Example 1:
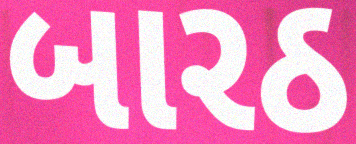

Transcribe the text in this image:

બારઠ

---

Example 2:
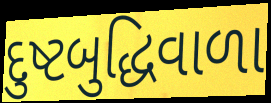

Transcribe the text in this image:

દુષ્ટબુદ્ધિવાળા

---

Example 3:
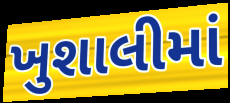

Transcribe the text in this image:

ખુશાલીમાં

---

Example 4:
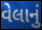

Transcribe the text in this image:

વેલાનું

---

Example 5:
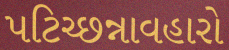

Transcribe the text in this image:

પટિચ્છન્નાવહારો